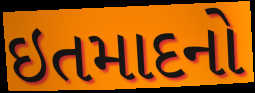
ઇતમાદનો